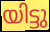
യിട്ടു